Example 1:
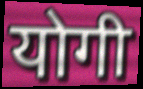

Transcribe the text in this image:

योगी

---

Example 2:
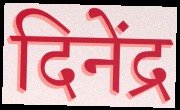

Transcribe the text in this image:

दिनेंद्र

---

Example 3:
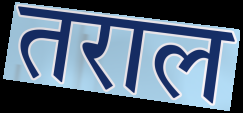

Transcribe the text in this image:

तराल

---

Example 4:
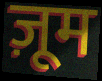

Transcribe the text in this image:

ज़ूम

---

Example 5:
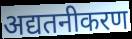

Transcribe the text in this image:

अद्यतनीकरण